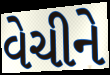
વેચીને